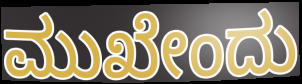
ಮುಖೇಂದು